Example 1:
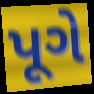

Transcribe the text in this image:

પૂગે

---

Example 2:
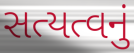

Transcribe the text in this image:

સત્યત્વનું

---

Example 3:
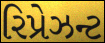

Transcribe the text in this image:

રિપ્રેઝન્ટ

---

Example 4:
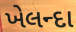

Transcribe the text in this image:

ખેલન્દા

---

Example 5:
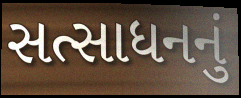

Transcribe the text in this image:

સત્સાધનનું